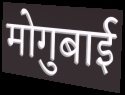
मोगुबाई